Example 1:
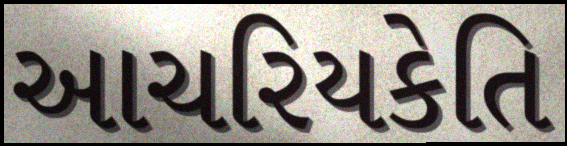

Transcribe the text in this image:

આચરિયકેતિ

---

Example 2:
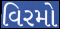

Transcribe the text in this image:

વિરમો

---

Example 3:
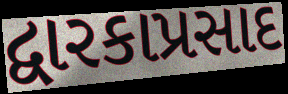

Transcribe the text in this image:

દ્વારકાપ્રસાદ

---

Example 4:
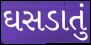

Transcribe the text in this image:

ઘસડાતું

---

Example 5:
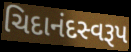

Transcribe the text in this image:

ચિદાનંદસ્વરૂપ